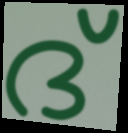
ദ്